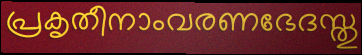
പ്രകൃതീനാംവരണഭേദസ്തു